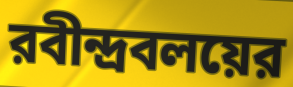
রবীন্দ্রবলয়ের